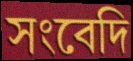
সংবেদি